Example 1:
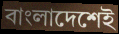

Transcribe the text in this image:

বাংলাদেশেই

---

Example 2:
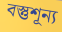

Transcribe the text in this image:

বস্তুশূন্য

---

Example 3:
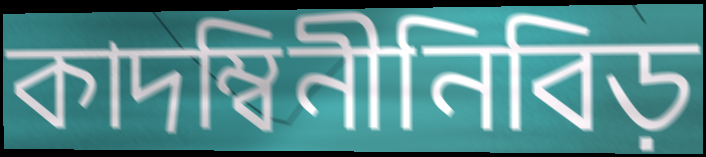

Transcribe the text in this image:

কাদম্বিনীনিবিড়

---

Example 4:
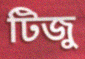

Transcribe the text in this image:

টিজু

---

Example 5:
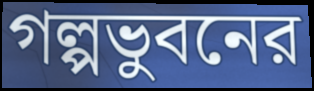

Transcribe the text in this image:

গল্পভুবনের